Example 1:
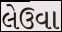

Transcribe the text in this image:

લેઉવા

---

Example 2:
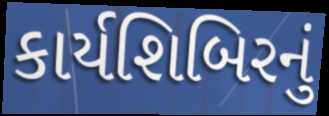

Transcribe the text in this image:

કાર્યશિબિરનું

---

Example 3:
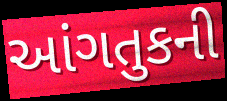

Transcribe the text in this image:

આંગતુકની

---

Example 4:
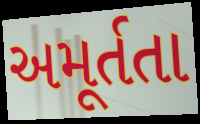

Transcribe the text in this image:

અમૂર્તતા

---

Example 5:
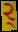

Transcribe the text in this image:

ર્